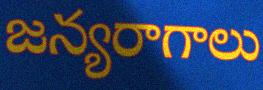
జన్యరాగాలు